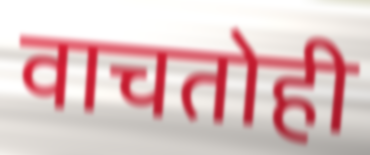
वाचतोही